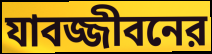
যাবজ্জীবনের